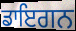
ਡਾਇਗਨ